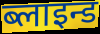
ब्लाइन्ड